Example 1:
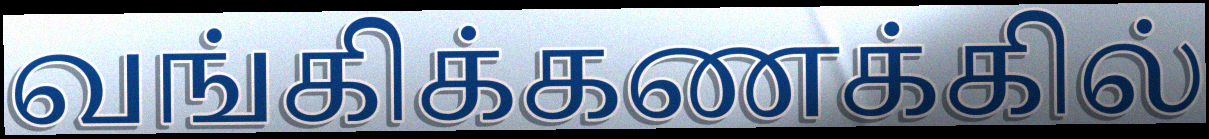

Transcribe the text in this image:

வங்கிக்கணக்கில்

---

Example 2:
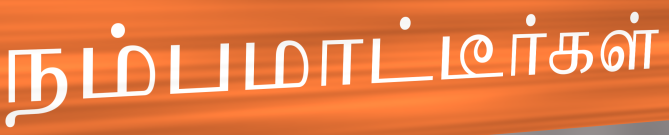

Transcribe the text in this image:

நம்பமாட்டீர்கள்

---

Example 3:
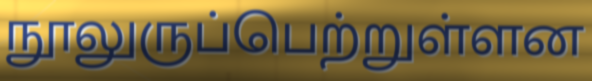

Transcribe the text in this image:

நூலுருப்பெற்றுள்ளன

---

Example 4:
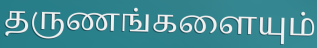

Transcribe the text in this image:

தருணங்களையும்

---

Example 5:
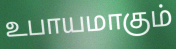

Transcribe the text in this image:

உபாயமாகும்